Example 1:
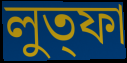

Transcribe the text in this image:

লুত্ফা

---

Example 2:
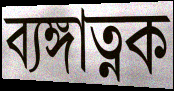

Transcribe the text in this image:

ব্যঙ্গাত্নক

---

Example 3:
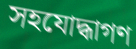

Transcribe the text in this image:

সহযোদ্ধাগণ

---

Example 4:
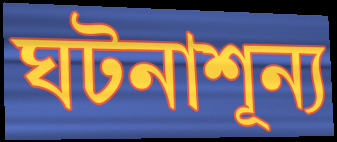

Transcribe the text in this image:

ঘটনাশূন্য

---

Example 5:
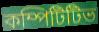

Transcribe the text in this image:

কম্পিটিটিভ